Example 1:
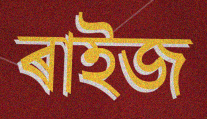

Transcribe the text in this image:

ৰাইজ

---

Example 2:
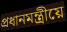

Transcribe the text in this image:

প্ৰধানমন্ত্ৰীয়ে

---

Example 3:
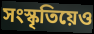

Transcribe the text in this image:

সংস্কৃতিয়েও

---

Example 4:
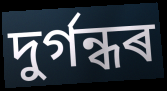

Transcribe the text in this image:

দুৰ্গন্ধৰ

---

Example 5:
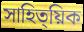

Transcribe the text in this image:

সাহিত্য়িক